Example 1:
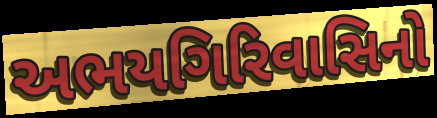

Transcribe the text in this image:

અભયગિરિવાસિનો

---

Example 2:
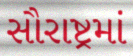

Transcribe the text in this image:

સૌરાષ્ટ્રમાં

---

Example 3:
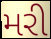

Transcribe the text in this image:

મરી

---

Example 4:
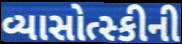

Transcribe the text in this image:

વ્યાસોત્સ્કીની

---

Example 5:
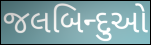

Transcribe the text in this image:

જલબિન્દુઓ